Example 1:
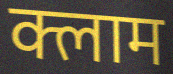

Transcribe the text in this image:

क्लाम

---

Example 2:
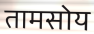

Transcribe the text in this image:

तामसोय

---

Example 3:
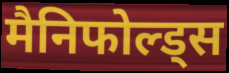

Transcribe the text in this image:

मैनिफोल्ड्स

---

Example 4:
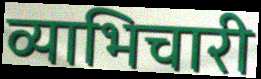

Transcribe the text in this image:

व्याभिचारी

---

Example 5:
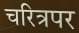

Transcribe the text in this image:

चरित्रपर